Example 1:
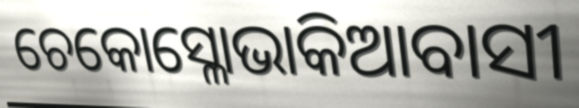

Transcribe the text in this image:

ଚେକୋସ୍ଳୋଭାକିଆବାସୀ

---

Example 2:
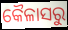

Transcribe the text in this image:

କୈଳାସରୁ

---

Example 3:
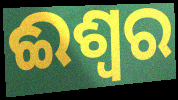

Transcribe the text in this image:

ଈଶ୍ଵର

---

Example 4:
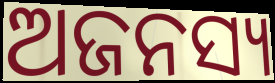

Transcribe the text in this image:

ଅଜନସ୍ୟ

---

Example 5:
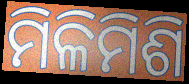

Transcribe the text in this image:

ମିଳିମିଶି